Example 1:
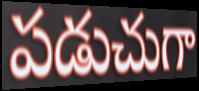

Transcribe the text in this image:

పడుచుగా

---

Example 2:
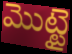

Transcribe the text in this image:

మొట్టై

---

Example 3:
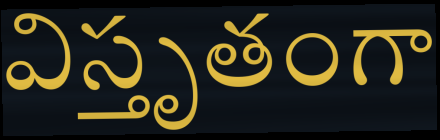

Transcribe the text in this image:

విస్తృతంగా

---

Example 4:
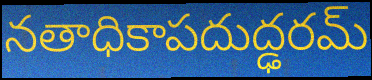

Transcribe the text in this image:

నతాధికాపదుద్ఢరమ్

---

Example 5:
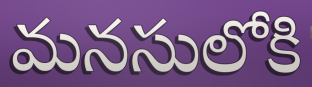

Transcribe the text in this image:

మనసులోకి